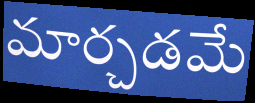
మార్చడమే